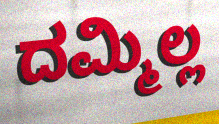
ದಮ್ಮಿಲ್ಲ